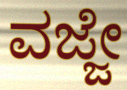
ವಜ್ಜೇ